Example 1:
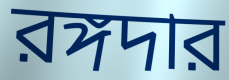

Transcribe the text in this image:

রঙ্গদার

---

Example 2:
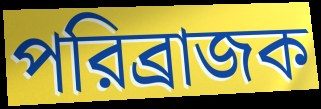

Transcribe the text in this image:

পরিব্রাজক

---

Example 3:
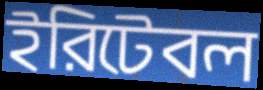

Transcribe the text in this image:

ইরিটেবল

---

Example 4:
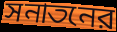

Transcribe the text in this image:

সনাতনের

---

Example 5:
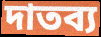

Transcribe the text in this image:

দাতব্য